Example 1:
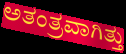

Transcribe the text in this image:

ಅತಂತ್ರವಾಗಿತ್ತು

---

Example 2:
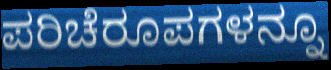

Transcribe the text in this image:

ಪರಿಚೆರೂಪಗಳನ್ನೂ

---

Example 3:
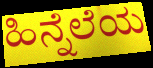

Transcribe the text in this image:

ಹಿನ್ನೆಲೆಯ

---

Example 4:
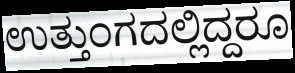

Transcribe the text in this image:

ಉತ್ತುಂಗದಲ್ಲಿದ್ದರೂ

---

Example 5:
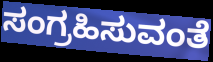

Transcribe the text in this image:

ಸಂಗ್ರಹಿಸುವಂತೆ